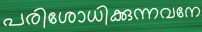
പരിശോധിക്കുന്നവനേ